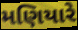
મણિયારે